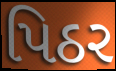
પિઠર